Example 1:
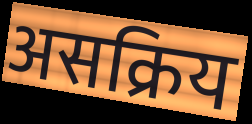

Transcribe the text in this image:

असक्रिय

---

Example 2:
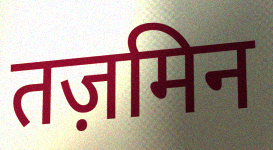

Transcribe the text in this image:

तज़मिन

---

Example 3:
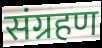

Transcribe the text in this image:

संग्रहण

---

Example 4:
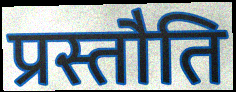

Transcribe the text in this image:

प्रस्तौति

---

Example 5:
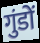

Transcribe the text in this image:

गुंडों